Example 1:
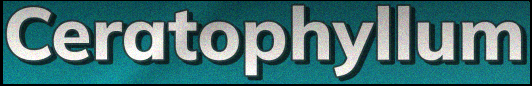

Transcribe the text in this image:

Ceratophyllum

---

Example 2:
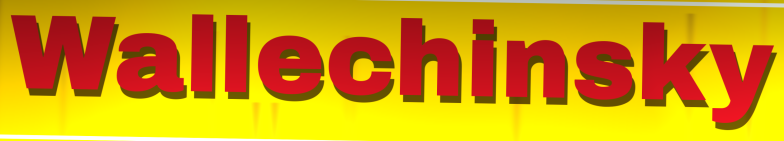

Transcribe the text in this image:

Wallechinsky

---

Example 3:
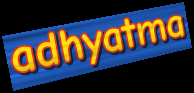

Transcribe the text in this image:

adhyatma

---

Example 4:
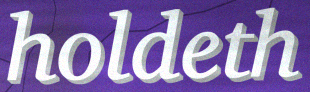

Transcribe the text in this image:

holdeth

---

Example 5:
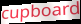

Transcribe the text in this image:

cupboard